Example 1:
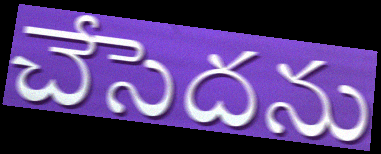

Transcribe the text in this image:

చేసెదను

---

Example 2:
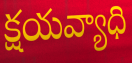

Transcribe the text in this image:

క్షయవ్యాధి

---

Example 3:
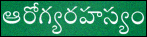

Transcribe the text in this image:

ఆరోగ్యరహస్యం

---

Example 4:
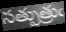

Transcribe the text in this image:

సత్పుత్రుఁ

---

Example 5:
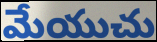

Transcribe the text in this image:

మేయుచు